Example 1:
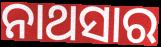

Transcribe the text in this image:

ନାଥସାର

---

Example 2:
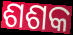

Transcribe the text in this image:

ଶଶକ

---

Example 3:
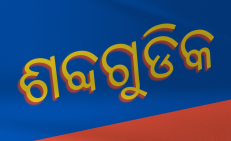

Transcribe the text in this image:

ଶବ୍ଦଗୁଡିକ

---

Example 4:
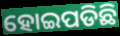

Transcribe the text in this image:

ହୋଇପଡିଛି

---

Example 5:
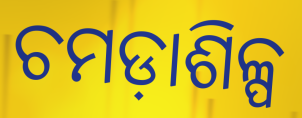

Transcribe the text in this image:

ଚମଡ଼ାଶିଳ୍ପ